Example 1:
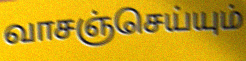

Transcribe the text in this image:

வாசஞ்செய்யும்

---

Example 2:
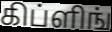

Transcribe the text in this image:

கிப்ளிங்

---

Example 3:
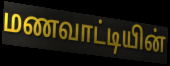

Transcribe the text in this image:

மணவாட்டியின்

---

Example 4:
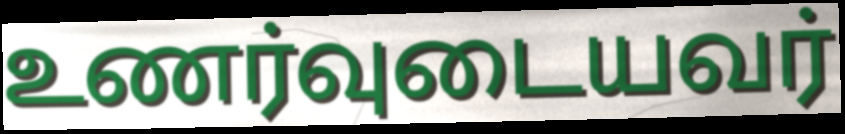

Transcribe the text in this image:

உணர்வுடையவர்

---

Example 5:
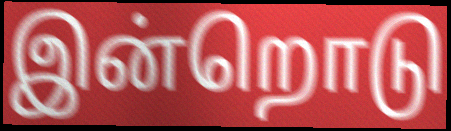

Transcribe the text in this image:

இன்றொடு